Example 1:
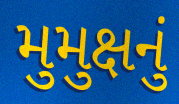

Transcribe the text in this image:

મુમુક્ષનું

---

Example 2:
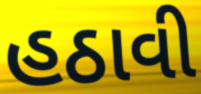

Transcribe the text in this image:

હઠાવી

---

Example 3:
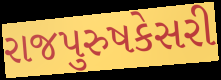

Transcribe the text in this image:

રાજપુરુષકેસરી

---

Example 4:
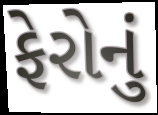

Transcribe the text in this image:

ફેરોનું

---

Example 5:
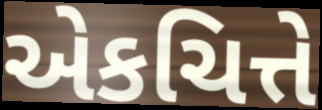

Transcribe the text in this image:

એકચિત્તે